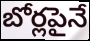
బోర్లపైనే